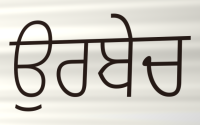
ਉਰਬੇਚ